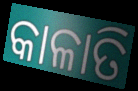
କାଳାତି